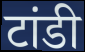
टांडी